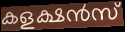
കളക്ഷൻസ്